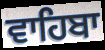
ਵਾਹਿਬਾ